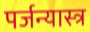
पर्जन्यास्त्र